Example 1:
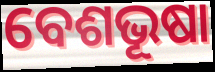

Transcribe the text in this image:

ବେଶଭୂଷା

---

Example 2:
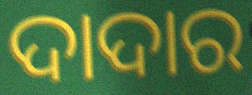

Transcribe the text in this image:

ଦାଦାର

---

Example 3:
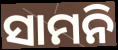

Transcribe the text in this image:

ସାମନି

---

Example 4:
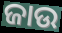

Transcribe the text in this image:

ଜାଉ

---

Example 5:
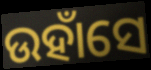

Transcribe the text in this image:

ଉହାଁସେ